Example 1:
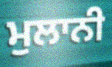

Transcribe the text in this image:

ਮੁਲਾਨੀ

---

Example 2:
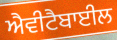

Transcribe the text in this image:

ਐਵੀਟੈਬਾਈਲ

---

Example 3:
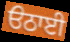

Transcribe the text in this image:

ੳਠਾਈ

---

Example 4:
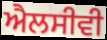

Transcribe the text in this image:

ਐਲਸੀਵੀ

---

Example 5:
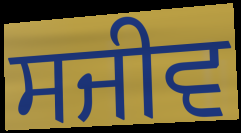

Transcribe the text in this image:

ਸਜੀਵ